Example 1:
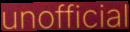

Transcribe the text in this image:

unofficial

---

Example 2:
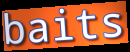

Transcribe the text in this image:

baits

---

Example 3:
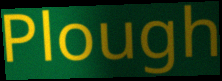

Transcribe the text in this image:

Plough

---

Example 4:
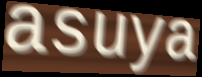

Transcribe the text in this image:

asuya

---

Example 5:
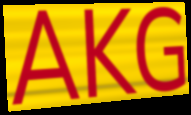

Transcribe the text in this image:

AKG